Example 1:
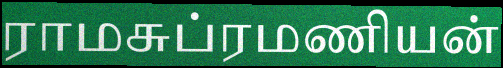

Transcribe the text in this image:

ராமசுப்ரமணியன்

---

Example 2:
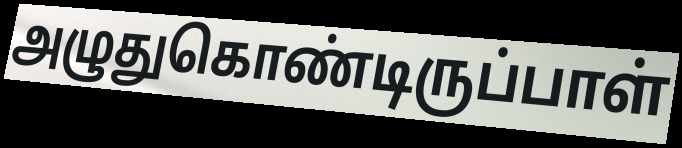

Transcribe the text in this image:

அழுதுகொண்டிருப்பாள்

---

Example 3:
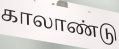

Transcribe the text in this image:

காலாண்டு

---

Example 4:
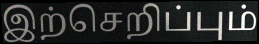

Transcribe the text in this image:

இற்செறிப்பும்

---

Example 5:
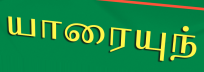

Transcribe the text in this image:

யாரையுந்